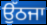
ਉੱਠਜਾ